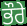
ਭੌਰੇ